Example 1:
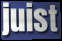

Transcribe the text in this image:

juist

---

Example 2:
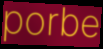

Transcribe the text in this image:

porbe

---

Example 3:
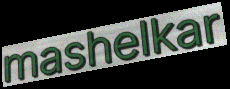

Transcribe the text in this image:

mashelkar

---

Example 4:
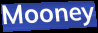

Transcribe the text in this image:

Mooney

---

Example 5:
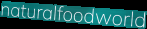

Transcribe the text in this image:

naturalfoodworld